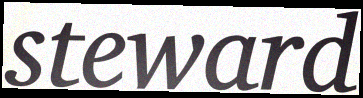
steward